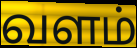
வளம்